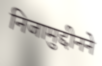
निजामुद्दीनने